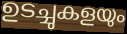
ഉടച്ചുകളയും